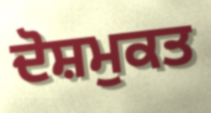
ਦੋਸ਼ਮੁਕਤ